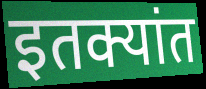
इतक्यांत